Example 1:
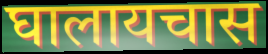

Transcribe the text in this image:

घालायचास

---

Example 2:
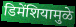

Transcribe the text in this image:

डिमेंशियामुळे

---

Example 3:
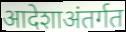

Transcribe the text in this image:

आदेशाअंतर्गत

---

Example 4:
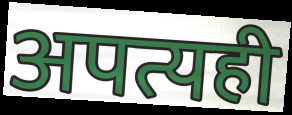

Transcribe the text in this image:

अपत्यही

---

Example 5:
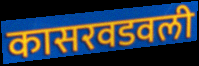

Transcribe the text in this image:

कासरवडवली